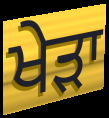
ਖੇੜਾ